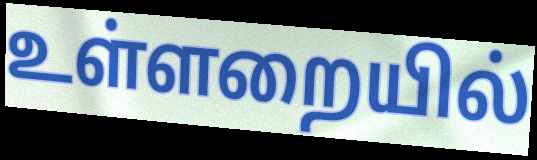
உள்ளறையில்